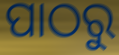
ପାଠରୁ